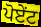
ਪੋਏਂਟ